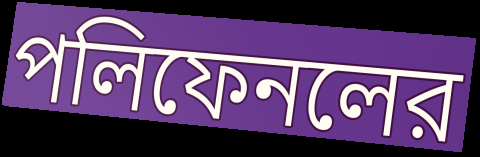
পলিফেনলের